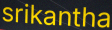
srikantha